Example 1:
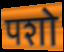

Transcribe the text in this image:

पशो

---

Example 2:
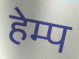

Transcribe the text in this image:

हेम्प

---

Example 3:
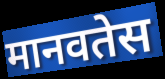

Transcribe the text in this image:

मानवतेस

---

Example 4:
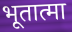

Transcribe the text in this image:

भूतात्मा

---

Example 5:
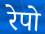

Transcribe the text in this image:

रेपो